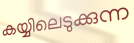
കയ്യിലെടുക്കുന്ന